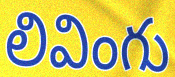
లివింగు